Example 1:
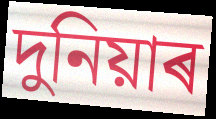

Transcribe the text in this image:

দুনিয়াৰ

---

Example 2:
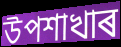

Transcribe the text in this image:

উপশাখাৰ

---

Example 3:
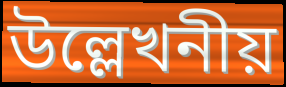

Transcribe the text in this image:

উল্লেখনীয়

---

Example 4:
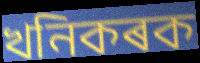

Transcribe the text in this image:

খনিকৰক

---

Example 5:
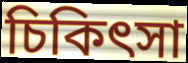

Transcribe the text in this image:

চিকিৎসা